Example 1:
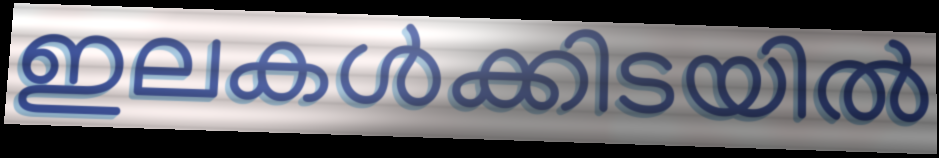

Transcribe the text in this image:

ഇലകൾക്കിടയിൽ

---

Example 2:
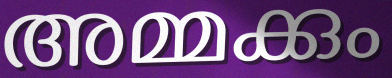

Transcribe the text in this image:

അമ്മക്കും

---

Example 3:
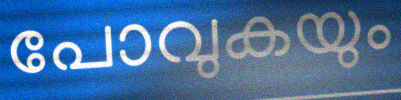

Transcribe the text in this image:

പോവുകയും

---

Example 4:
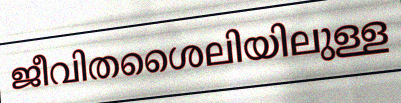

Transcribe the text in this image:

ജീവിതശൈലിയിലുള്ള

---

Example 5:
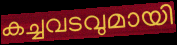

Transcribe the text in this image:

കച്ചവടവുമായി